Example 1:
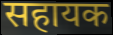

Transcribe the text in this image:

सहायक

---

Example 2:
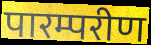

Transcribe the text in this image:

पारम्परीण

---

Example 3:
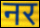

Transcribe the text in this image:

नर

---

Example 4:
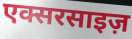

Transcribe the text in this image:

एक्सरसाइज़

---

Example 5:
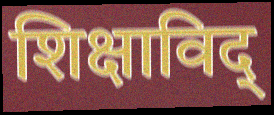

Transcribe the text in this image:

शिक्षाविद्